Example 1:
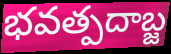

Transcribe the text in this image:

భవత్పదాబ్జ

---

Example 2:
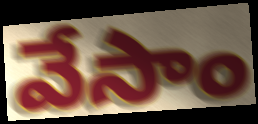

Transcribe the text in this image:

వేసాం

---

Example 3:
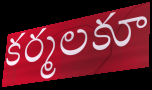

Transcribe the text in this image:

కర్మలకూ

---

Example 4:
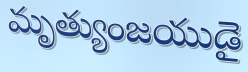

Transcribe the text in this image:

మృత్యుంజయుడై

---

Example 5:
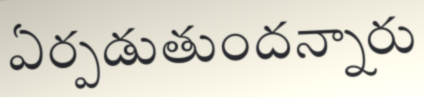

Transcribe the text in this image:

ఏర్పడుతుందన్నారు